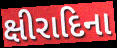
ક્ષીરાદિના